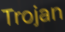
Trojan